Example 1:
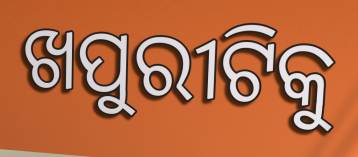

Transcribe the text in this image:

ଖପୁରୀଟିକୁ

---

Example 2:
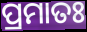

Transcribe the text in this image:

ପ୍ରମାତଃ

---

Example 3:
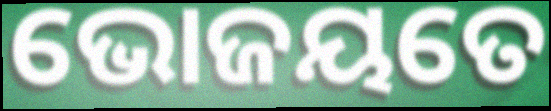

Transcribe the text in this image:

ଭୋଜୟତେ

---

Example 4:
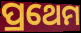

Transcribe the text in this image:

ପ୍ରଥେମ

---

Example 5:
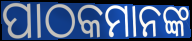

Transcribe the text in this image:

ପାଠକମାନଙ୍କ